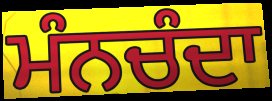
ਮੰਨਚੰਦਾ